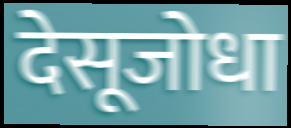
देसूजोधा